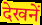
देखनें